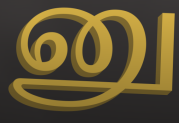
னு